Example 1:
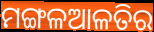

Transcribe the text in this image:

ମଙ୍ଗଳଆଳତିର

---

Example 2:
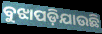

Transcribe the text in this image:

ବୁଝାପଡ଼ିଯାଉଛି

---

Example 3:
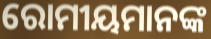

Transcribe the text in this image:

ରୋମୀୟମାନଙ୍କ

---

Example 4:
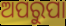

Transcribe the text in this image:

ଅପରୁପା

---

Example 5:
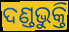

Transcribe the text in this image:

ଦଣ୍ଡଭୁକ୍ତି